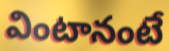
వింటానంటే